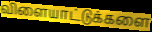
விளையாட்டுக்களை